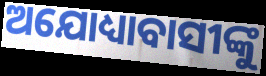
ଅଯୋଧ୍ୟାବାସୀଙ୍କୁ